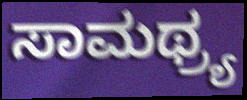
ಸಾಮಥ್ರ್ಯ